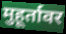
मुहूर्तावर